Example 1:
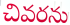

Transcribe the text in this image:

చివరను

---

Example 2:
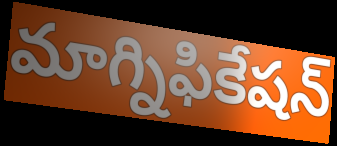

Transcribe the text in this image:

మాగ్నిఫికేషన్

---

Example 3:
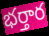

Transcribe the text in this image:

భర్తార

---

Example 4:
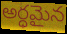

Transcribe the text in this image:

అర్ధమైన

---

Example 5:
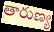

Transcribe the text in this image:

తారుణ్య